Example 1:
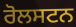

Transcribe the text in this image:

ਰੋਲਸਟਨ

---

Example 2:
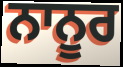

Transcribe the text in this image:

ਨਾਨੂਰ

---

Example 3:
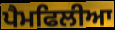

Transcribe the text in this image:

ਪੈਮਫਿਲੀਆ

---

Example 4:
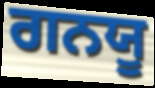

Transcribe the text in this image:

ਗਨਯੂ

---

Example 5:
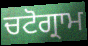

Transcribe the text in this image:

ਚਟੋਗ੍ਰਾਮ